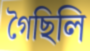
গৈছিলি